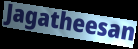
Jagatheesan